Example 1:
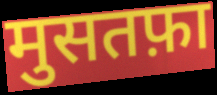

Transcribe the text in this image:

मुसतफ़ा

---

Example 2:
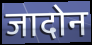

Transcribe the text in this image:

जादोन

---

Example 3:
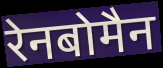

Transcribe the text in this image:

रेनबोमैन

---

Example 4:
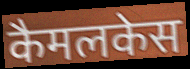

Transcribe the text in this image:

कैमलकेस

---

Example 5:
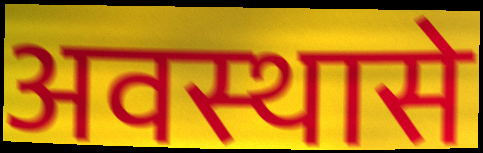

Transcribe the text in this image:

अवस्थासे